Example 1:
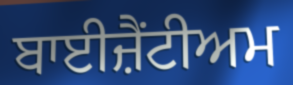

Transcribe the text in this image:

ਬਾਈਜ਼ੈਂਟੀਅਮ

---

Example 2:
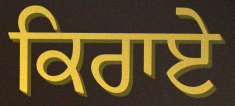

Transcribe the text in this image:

ਕਿਰਾਏ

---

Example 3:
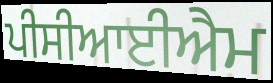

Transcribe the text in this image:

ਪੀਸੀਆਈਐਮ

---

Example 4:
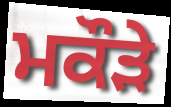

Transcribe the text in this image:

ਮਕੌੜੇ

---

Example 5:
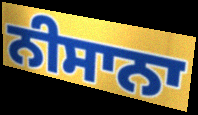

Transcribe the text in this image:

ਨੀਸਾਨਾ